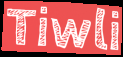
Tiwli